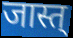
जास्त्